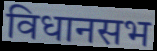
विधानसभ